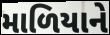
માળિયાને